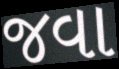
જવા